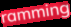
ramming